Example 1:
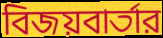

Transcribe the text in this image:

বিজয়বার্তার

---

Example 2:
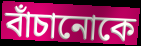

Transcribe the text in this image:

বাঁচানোকে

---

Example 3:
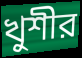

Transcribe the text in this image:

খুশীর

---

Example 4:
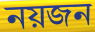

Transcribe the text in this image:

নয়জন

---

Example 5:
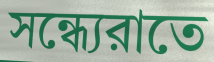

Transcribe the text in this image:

সন্ধ্যেরাতে